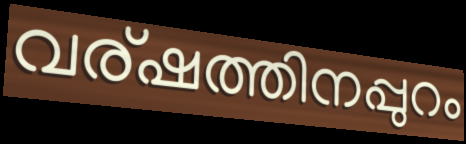
വര്ഷത്തിനപ്പുറം